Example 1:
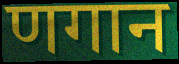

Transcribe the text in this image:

णगान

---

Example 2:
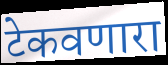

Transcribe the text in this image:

टेकवणारा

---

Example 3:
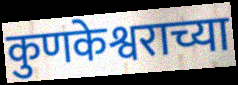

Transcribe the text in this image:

कुणकेश्वराच्या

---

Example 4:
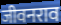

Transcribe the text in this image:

जीवनराव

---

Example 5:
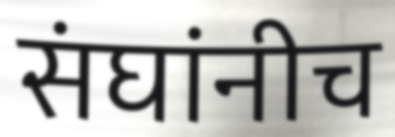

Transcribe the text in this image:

संघांनीच